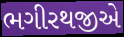
ભગીરથજીએ